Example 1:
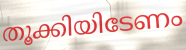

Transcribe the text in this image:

തൂക്കിയിടേണം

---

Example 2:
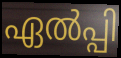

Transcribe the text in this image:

ഏൽപ്പി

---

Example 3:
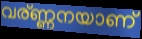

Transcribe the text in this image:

വര്ണ്ണനയാണ്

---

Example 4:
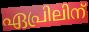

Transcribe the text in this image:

ഏപ്രിലിന്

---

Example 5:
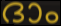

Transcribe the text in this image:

ദാം